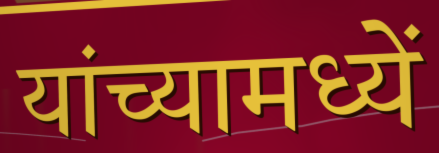
यांच्यामध्यें